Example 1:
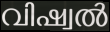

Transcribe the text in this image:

വിഷ്വൽ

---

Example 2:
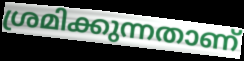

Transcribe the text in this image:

ശ്രമിക്കുന്നതാണ്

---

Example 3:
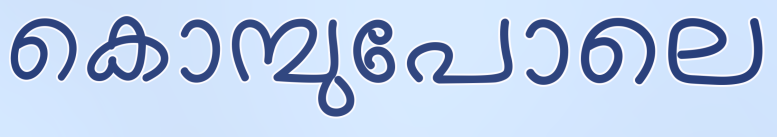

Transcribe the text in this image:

കൊമ്പുപോലെ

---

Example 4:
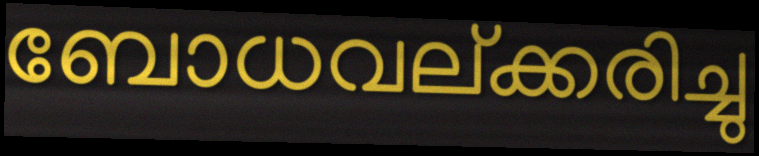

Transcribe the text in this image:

ബോധവല്ക്കരിച്ചു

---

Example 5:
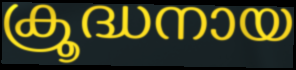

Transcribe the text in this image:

ക്രൂദ്ധനായ